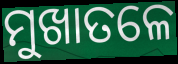
ମୁଖାତଳେ